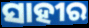
ସାହୀର